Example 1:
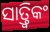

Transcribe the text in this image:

ସାତ୍ତ୍ୱିକଂ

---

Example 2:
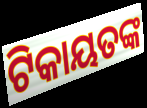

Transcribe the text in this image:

ଟିକାୟତଙ୍କ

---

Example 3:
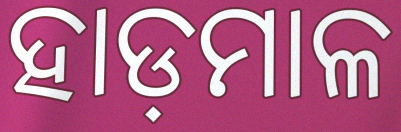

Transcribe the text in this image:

ହାଡ଼ମାଳ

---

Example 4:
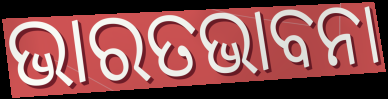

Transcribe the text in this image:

ଭାରତଭାବନା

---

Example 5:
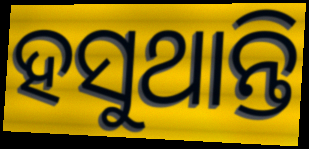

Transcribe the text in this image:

ହସୁଥାନ୍ତି